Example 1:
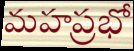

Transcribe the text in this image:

మహప్రభో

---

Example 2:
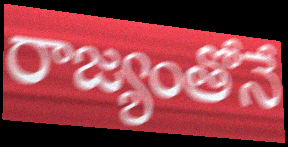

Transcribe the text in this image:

రాజ్యంతోనే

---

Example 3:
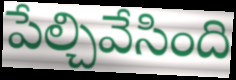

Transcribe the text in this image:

పేల్చివేసింది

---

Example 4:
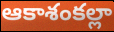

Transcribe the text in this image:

ఆకాశంకల్లా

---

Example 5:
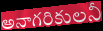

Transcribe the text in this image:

అనాగరికులనీ